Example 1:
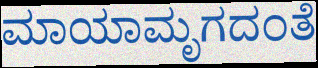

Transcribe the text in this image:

ಮಾಯಾಮೃಗದಂತೆ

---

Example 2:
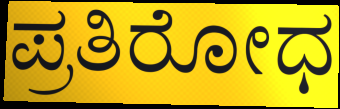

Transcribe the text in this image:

ಪ್ರತಿರೋಧ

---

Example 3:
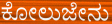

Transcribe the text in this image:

ಕೋಲುಜೇನು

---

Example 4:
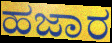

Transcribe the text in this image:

ಹಜಾರ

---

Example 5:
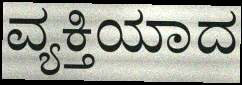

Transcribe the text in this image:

ವ್ಯಕ್ತಿಯಾದ